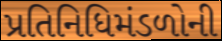
પ્રતિનિધિમંડળોની